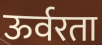
ऊर्वरता